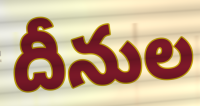
దీనుల